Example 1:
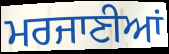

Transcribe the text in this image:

ਮਰਜਾਣੀਆਂ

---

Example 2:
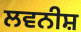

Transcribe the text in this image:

ਲਵਨੀਸ਼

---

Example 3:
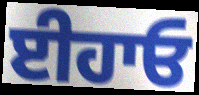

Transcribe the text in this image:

ਈਹਾਓ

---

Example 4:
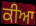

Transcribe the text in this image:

ਕੀਆ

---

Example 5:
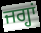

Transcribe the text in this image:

ਜਗ੍ਹਾਂ